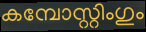
കമ്പോസ്റ്റിംഗും